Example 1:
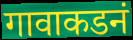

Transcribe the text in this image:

गावाकडनं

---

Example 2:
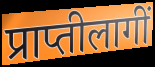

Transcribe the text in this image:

प्राप्तीलागीं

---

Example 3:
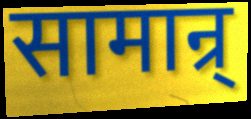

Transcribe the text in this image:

सामान्र्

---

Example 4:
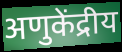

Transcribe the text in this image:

अणुकेंद्रीय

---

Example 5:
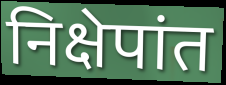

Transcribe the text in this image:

निक्षेपांत